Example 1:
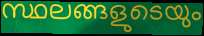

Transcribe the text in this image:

സ്ഥലങ്ങളുടെയും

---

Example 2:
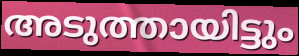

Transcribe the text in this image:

അടുത്തായിട്ടും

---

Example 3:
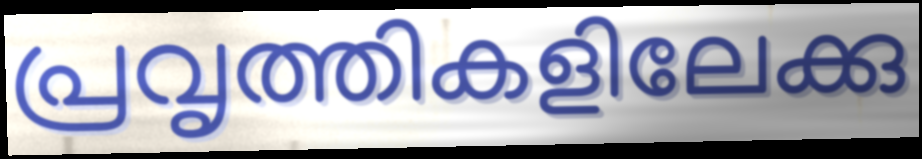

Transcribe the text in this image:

പ്രവൃത്തികളിലേക്കു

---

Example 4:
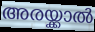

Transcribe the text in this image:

അരയ്ക്കാൽ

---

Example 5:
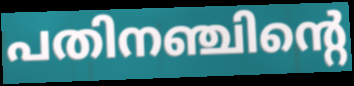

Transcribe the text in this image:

പതിനഞ്ചിന്റെ